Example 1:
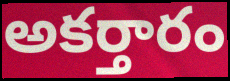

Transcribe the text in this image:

అకర్తారం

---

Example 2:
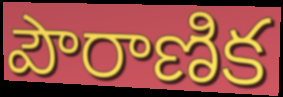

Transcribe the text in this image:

పౌరాణిక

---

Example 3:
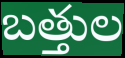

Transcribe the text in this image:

బత్తుల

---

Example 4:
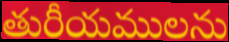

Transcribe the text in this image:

తురీయములను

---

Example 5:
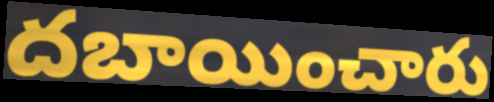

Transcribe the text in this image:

దబాయించారు